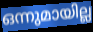
ഒന്നുമായില്ല